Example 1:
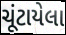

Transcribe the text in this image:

ચૂંટાયેલા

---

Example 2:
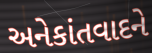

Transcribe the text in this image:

અનેકાંતવાદને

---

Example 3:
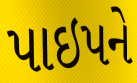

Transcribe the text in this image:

પાઇપને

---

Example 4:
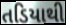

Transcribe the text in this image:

તડિયાથી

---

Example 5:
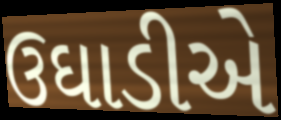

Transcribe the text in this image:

ઉઘાડીએ